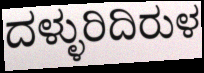
ದಳ್ಳುರಿದಿರುಳ